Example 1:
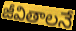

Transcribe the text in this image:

జీవితాలనే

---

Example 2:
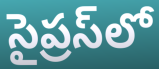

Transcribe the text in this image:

సైప్రస్‌లో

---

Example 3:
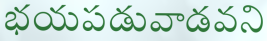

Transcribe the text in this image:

భయపడువాడవని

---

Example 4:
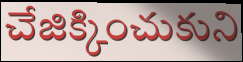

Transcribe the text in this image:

చేజిక్కించుకుని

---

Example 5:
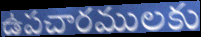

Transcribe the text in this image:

ఉపచారములకు